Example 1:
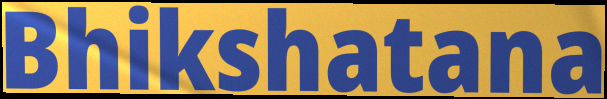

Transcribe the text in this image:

Bhikshatana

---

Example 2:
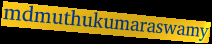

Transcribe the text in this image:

mdmuthukumaraswamy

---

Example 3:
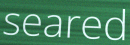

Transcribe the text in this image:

seared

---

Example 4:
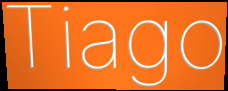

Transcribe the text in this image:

Tiago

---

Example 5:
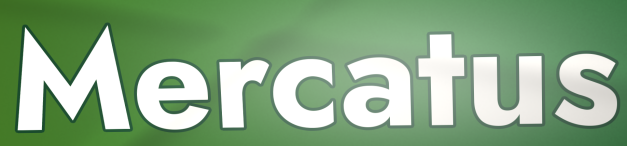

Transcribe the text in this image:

Mercatus